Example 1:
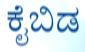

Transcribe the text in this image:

ಕೈಬಿಡ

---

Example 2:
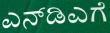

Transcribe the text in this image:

ಎನ್‌ಡಿಎಗೆ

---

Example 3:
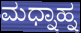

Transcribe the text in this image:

ಮಧ್ನಾಹ್ನ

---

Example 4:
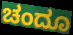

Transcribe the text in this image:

ಚಂದೂ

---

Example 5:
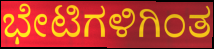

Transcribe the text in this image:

ಭೇಟಿಗಳಿಗಿಂತ